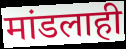
मांडलाही